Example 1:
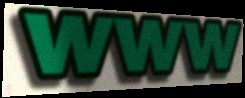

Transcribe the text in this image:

www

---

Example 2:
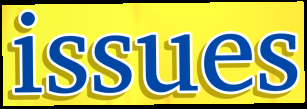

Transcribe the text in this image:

issues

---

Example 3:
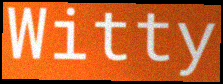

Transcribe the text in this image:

Witty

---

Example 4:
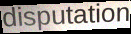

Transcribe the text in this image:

disputation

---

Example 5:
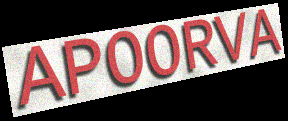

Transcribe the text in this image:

APOORVA